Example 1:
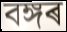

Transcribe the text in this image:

বঙ্গৰ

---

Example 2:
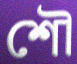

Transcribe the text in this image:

শৌ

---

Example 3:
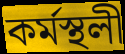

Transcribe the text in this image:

কৰ্মস্থলী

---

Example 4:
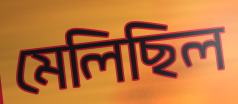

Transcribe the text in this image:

মেলিছিল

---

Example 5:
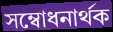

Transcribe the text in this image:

সম্বোধনাৰ্থক